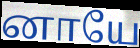
னாயே